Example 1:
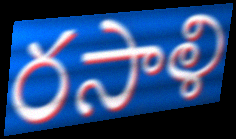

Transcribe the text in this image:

రసాళి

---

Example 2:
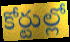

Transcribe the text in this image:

కోర్టుల్లో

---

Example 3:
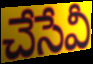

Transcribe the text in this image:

చేసేవీ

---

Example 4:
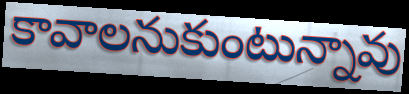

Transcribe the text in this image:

కావాలనుకుంటున్నావు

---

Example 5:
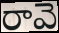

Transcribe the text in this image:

రావె